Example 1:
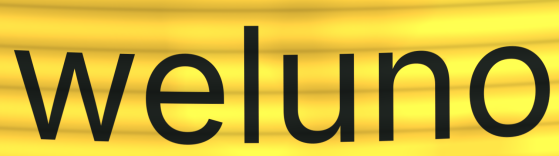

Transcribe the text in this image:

weluno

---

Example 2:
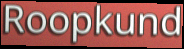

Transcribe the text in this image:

Roopkund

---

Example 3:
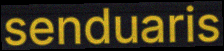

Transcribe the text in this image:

senduaris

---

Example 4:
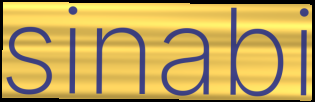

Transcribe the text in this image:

sinabi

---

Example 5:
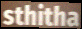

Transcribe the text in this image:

sthitha